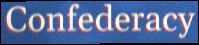
Confederacy